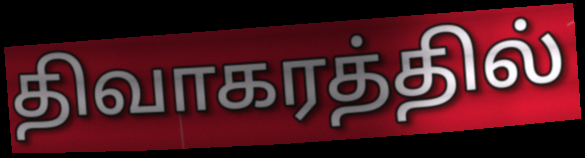
திவாகரத்தில்